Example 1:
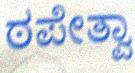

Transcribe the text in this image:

ಠಪೇತ್ವಾ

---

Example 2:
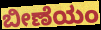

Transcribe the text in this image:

ಬೀಣೆಯಂ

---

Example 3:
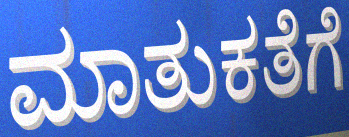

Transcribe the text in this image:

ಮಾತುಕತೆಗೆ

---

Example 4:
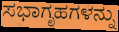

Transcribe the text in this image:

ಸಭಾಗೃಹಗಳನ್ನು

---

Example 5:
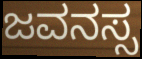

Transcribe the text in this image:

ಜವನಸ್ಸ